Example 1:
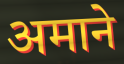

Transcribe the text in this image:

अमाने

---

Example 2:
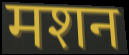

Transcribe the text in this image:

मशन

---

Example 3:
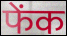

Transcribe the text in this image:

फेंक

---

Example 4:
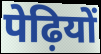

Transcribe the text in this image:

पेढ़ियों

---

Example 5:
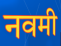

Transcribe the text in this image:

नवमी